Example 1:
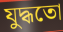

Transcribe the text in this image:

যুদ্ধতো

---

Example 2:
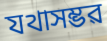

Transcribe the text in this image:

যথাসম্ভৱ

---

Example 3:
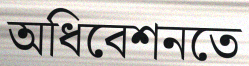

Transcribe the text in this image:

অধিবেশনতে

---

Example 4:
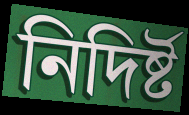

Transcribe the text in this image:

নিদিৰ্ষ্ট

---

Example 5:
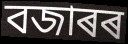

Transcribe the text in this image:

বজাৰৰ